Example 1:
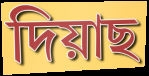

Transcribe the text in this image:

দিয়াছ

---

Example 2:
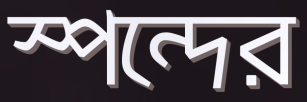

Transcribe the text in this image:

স্পন্দের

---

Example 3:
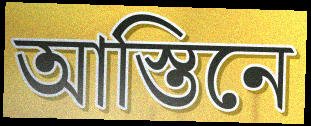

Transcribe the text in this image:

আস্তিনে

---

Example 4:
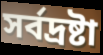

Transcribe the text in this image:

সর্বদ্রষ্টা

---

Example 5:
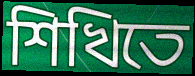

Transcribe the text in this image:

শিখিতে